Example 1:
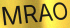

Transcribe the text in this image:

MRAO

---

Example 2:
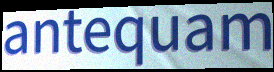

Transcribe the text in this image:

antequam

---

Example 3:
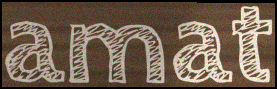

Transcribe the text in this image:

amat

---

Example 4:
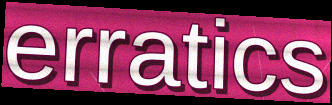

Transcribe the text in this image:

erratics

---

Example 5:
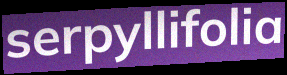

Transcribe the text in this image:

serpyllifolia